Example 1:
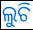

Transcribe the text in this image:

ଲୁଚି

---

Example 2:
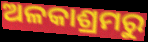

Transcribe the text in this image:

ଅଳକାଶ୍ରମରୁ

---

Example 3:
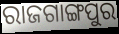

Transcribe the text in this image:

ରାଜଗାଙ୍ଗପୁର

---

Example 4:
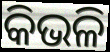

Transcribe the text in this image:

କିଭଳି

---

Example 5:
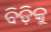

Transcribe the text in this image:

ବିଡ଼ିକୁ